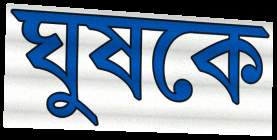
ঘুষকে